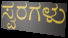
ಸ್ವರಗಳು